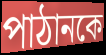
পাঠানকে